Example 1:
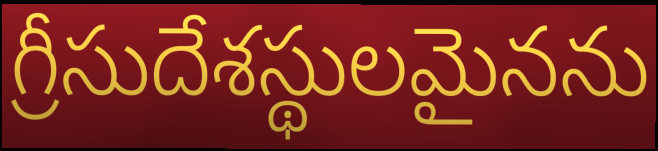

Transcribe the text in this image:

గ్రీసుదేశస్థులమైనను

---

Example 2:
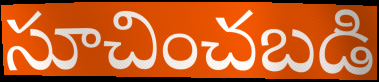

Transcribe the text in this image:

సూచించబడి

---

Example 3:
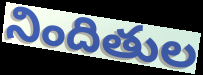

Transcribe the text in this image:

నిందితుల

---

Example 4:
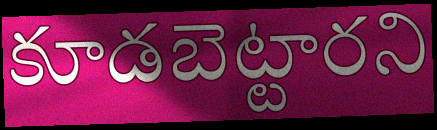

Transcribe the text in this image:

కూడబెట్టారని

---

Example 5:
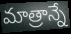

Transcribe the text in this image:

మాత్రాన్నే